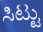
ಸಿಟ್ಟು